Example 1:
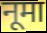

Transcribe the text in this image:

नूमा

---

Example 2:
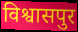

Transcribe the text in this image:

विश्वासपुर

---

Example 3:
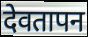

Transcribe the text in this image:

देवतापन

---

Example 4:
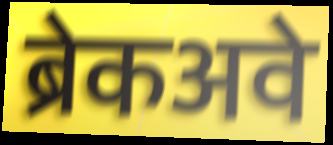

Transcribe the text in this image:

ब्रेकअवे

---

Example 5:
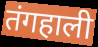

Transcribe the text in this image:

तंगहाली